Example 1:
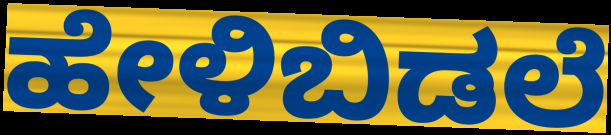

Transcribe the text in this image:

ಹೇಳಿಬಿಡಲೆ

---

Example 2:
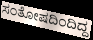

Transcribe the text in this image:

ಸಂತೋಷದಿಂದಿದ್ದ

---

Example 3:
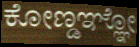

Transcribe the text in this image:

ಕೋಣ್ಡಞ್ಞೋ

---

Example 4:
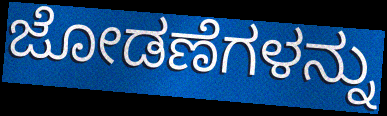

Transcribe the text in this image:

ಜೋಡಣೆಗಳನ್ನು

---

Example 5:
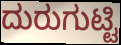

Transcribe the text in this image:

ದುರುಗುಟ್ಟಿ